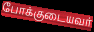
போக்குடையவர்